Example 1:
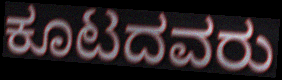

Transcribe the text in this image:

ಕೂಟದವರು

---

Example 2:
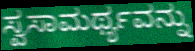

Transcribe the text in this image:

ಸ್ವಸಾಮರ್ಥ್ಯವನ್ನು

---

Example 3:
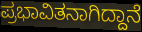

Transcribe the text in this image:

ಪ್ರಭಾವಿತನಾಗಿದ್ದಾನೆ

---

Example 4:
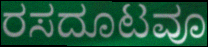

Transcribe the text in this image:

ರಸದೂಟವೂ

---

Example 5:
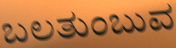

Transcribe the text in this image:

ಬಲತುಂಬುವ